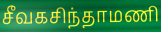
சீவகசிந்தாமணி